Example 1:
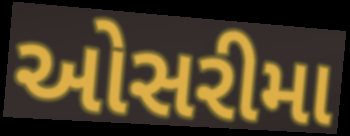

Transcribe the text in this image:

ઓસરીમા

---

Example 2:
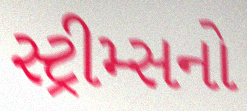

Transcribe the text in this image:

સ્ટ્રીમ્સનો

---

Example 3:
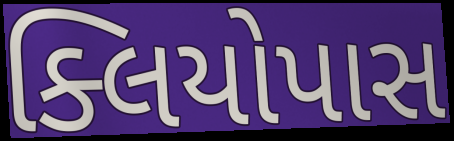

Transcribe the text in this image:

ક્લિયોપાસ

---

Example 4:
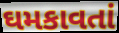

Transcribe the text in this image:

ઘમકાવતાં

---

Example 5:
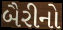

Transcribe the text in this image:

બૈરીનો